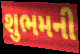
શુભમની